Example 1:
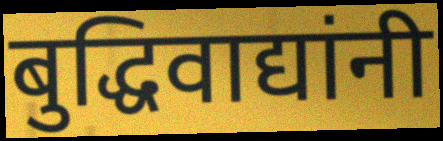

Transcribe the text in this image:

बुद्धिवाद्यांनी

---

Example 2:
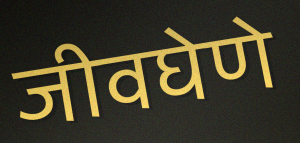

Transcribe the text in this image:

जीवघेणे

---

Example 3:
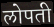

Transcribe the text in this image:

लोपती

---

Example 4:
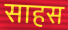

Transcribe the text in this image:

साहस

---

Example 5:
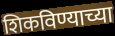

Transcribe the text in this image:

शिकविण्याच्या